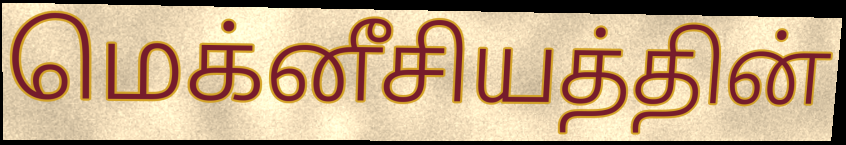
மெக்னீசியத்தின்